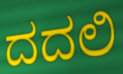
ದದಲಿ